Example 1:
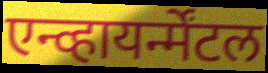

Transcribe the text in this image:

एन्व्हायर्न्मेंटल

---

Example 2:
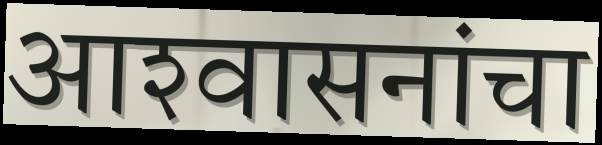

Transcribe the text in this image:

आश्वासनांचा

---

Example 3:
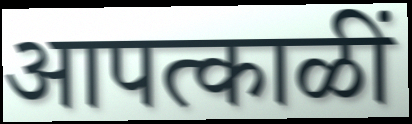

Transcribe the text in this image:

आपत्काळीं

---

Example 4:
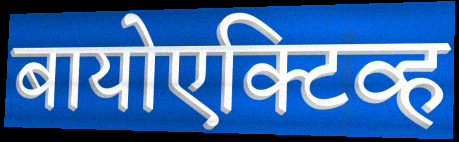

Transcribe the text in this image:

बायोएक्टिव्ह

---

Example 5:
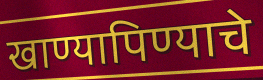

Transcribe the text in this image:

खाण्यापिण्याचे